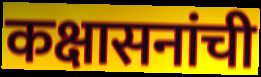
कक्षासनांची